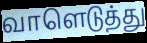
வாளெடுத்து